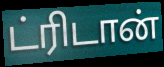
ட்ரிடான்